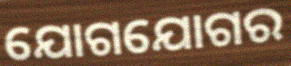
ଯୋଗଯୋଗର